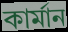
কার্মান